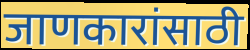
जाणकारांसाठी